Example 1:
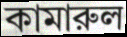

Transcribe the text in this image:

কামারুল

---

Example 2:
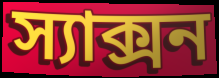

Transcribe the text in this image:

স্যাক্সন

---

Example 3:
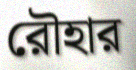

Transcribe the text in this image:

রৌহার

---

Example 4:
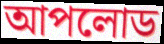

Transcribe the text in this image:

আপলোড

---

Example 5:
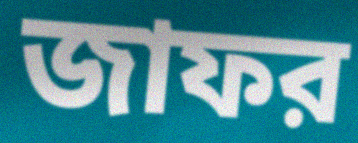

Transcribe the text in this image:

জাফর